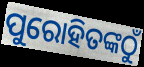
ପୁରୋହିତଙ୍କଠୁଁ